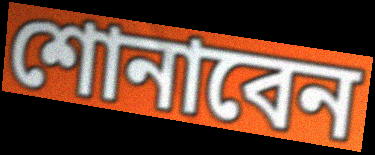
শোনাবেন